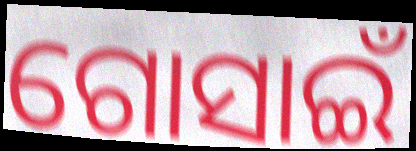
ଗୋସାଇଁ